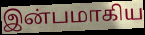
இன்பமாகிய